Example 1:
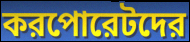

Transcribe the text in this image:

করপোরেটদের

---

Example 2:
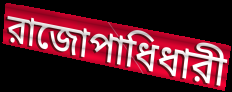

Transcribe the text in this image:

রাজোপাধিধারী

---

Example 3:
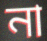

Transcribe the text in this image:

না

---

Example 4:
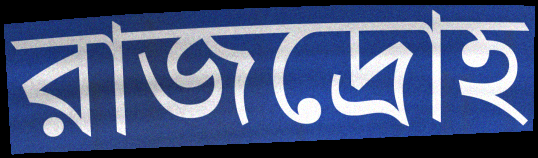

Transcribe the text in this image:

রাজদ্রোহ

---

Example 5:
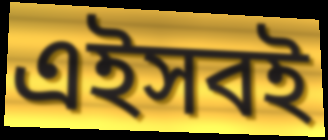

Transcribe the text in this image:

এইসবই